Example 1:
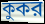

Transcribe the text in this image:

কুকর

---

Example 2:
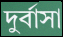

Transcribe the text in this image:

দুর্বাসা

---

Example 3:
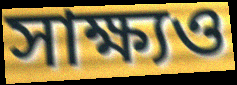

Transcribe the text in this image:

সাক্ষ্যও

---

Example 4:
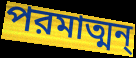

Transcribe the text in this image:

পরমাত্মন্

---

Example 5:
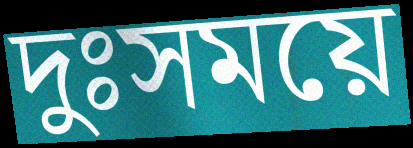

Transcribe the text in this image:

দুঃসময়ে